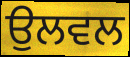
ਉਲਵਲ